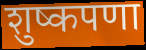
शुष्कपणा